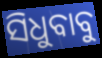
ସିଧୁବାବୁ